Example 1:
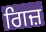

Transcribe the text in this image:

ਗਿਜ਼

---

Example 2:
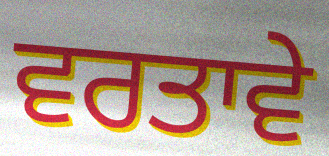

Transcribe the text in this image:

ਵਰਤਾਵੇ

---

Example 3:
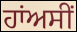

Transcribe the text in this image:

ਹਾਂਅਸੀਂ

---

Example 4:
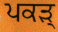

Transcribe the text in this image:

ਪਕੜ੍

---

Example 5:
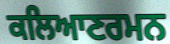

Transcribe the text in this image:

ਕਲਿਆਣਰਮਨ